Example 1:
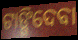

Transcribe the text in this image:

ଟାଙ୍ଗିଦେବା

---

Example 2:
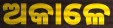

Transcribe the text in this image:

ଅକାଳେ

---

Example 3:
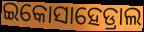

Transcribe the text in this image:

ଇକୋସାହେଡ୍ରାଲ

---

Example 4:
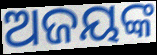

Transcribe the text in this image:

ଅଜୟଙ୍କ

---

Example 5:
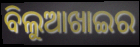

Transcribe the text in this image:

ବିଲୁଆଖାଇର